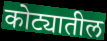
कोट्यातील